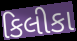
કિલીકા